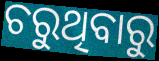
ଚରୁଥିବାରୁ